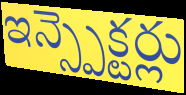
ఇన్స్పెక్టర్లు